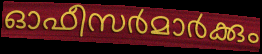
ഓഫീസർമാർക്കും